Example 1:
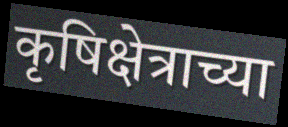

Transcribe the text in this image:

कृषिक्षेत्राच्या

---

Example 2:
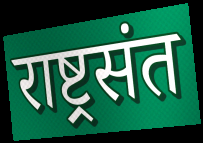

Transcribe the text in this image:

राष्ट्रसंत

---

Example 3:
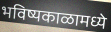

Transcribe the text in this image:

भविष्यकाळामध्ये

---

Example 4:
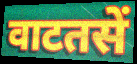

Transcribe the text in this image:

वाटतसें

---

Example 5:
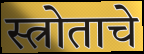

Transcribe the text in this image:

स्त्रोताचे